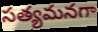
సత్యమనగా